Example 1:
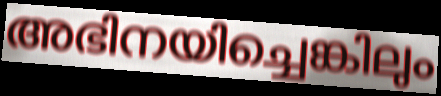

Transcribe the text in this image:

അഭിനയിച്ചെങ്കിലും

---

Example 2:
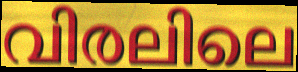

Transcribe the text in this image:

വിരലിലെ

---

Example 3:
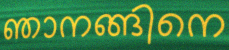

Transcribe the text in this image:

ഞാനങ്ങിനെ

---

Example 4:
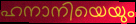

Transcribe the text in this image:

ഹനാനിയെയും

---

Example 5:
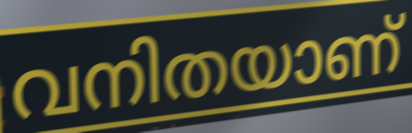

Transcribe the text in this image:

വനിതയാണ്